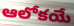
ఆలోకయే